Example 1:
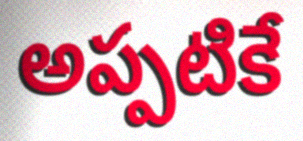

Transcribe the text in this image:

అప్పటికే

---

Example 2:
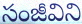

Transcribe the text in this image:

సంజీవిని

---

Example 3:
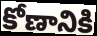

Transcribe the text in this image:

కోణానికి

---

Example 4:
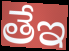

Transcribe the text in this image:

తేఇ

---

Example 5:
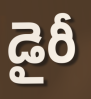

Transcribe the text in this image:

డైరీ